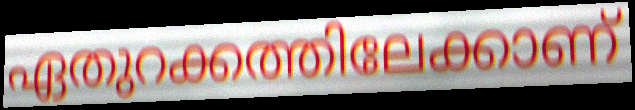
ഏതുറക്കത്തിലേക്കാണ്